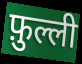
फ़ुल्ली